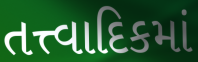
તત્ત્વાદિકમાં